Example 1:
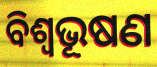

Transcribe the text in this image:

ବିଶ୍ବଭୂଷଣ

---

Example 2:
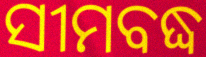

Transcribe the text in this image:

ସୀମବଦ୍ଧ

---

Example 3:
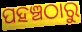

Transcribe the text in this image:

ପହଞ୍ଚଠାରୁ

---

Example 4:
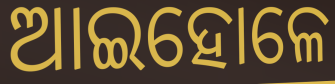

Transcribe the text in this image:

ଆଇହୋଳେ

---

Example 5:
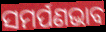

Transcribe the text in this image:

ସମର୍ପଣଭାବ